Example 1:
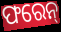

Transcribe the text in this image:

ଫରେନ୍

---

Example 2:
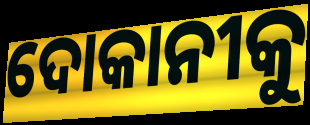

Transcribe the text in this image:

ଦୋକାନୀକୁ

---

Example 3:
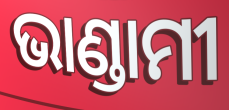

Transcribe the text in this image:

ଭାଣ୍ଡାମୀ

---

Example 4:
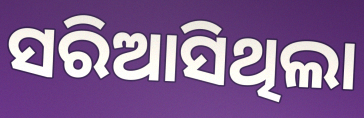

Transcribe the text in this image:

ସରିଆସିଥିଲା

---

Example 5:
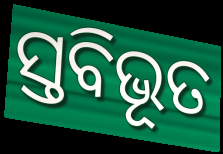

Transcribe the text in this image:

ସ୍ତବିଭୂତ